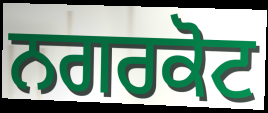
ਨਗਰਕੋਟ